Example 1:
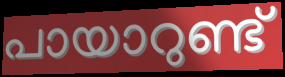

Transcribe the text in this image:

പായാറുണ്ട്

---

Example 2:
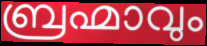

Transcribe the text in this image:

ബ്രഹ്മാവും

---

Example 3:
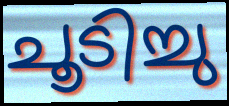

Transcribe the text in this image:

ചൂടിച്ചു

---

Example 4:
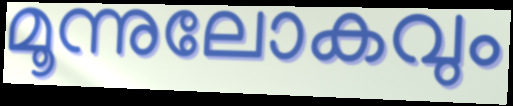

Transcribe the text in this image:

മൂന്നുലോകവും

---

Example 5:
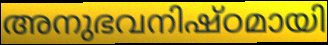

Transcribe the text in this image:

അനുഭവനിഷ്ഠമായി